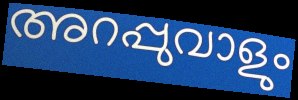
അറപ്പുവാളും